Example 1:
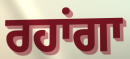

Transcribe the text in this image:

ਰਹਾਂਗਾ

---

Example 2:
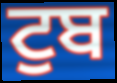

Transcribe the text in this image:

ਟੁਬ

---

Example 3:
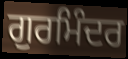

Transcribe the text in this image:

ਗੁਰਮਿੰਦਰ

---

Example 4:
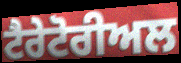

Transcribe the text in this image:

ਟੈਰੇਟੋਰੀਅਲ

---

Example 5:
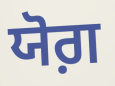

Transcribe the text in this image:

ਯੋਗ਼